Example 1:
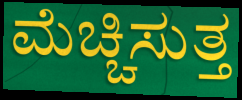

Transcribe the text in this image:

ಮೆಚ್ಚಿಸುತ್ತ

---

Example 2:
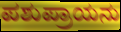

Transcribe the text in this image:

ಪಶುಪ್ರಾಯನು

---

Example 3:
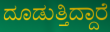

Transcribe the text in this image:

ದೂಡುತ್ತಿದ್ದಾರೆ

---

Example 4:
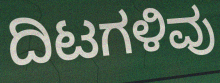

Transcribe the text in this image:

ದಿಟಗಳಿವು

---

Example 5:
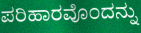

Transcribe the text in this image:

ಪರಿಹಾರವೊಂದನ್ನು